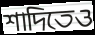
শাদিতেও